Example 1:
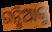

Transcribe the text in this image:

ଗନ୍ଧିଆକୁ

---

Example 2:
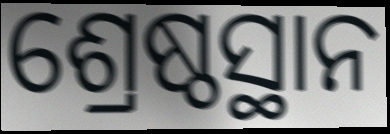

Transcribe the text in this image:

ଶ୍ରେଷ୍ଠସ୍ଥାନ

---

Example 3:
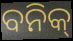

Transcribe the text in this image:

ବନିକ୍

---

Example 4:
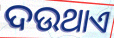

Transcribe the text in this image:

ଦଉଥାଏ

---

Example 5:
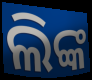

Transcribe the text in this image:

ଲିଙ୍କ